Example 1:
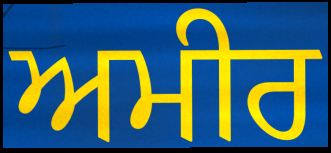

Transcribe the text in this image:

ਅਮੀਰ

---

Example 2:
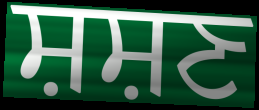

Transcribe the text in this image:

ਸ਼ਸ਼ਣ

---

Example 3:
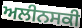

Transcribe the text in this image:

ਅਲੀਨਸਕੀ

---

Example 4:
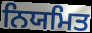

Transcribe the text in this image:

ਨਿਯਮਿਤ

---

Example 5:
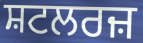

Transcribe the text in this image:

ਸ਼ਟਲਰਜ਼